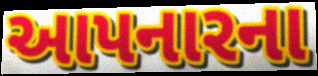
આપનારના